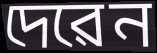
দেৱেন